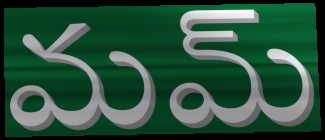
మమ్